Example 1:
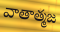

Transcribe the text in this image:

వాతాత్మజ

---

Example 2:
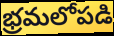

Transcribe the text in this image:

భ్రమలోపడి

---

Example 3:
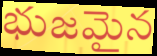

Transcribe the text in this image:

భుజమైన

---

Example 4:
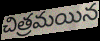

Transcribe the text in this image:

చిత్రమయిన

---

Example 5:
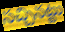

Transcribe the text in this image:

సచ్చినట్టు